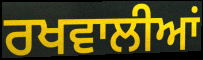
ਰਖਵਾਲੀਆਂ